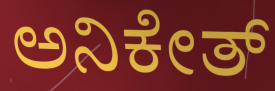
ಅನಿಕೇತ್